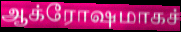
ஆக்ரோஷமாகச்